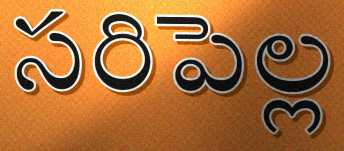
సరిపెల్ల